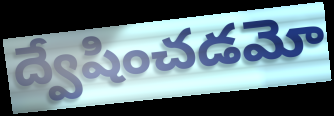
ద్వేషించడమో